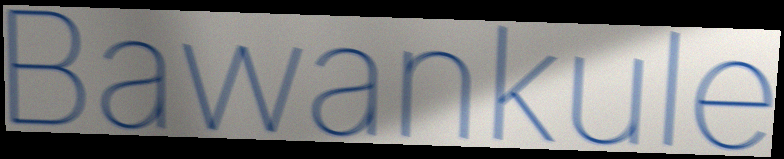
Bawankule